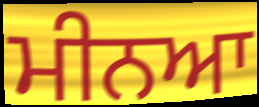
ਮੀਨਆ